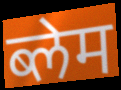
ब्लेम